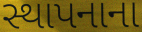
સ્થાપનાના